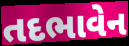
તદભાવેન